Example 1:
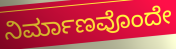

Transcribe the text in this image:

ನಿರ್ಮಾಣವೊಂದೇ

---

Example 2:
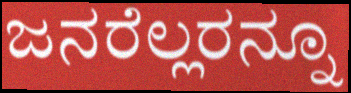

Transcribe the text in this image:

ಜನರೆಲ್ಲರನ್ನೂ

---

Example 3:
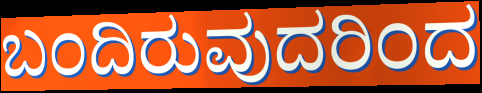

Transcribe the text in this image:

ಬಂದಿರುವುದರಿಂದ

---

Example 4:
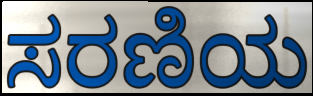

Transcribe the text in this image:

ಸರಣಿಯ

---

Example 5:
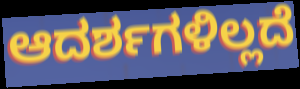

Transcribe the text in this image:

ಆದರ್ಶಗಳಿಲ್ಲದೆ